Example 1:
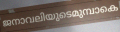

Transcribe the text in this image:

ജനാവലിയുടെമുമ്പാകെ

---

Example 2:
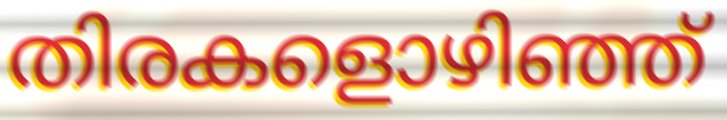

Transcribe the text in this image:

തിരകളൊഴിഞ്ഞ്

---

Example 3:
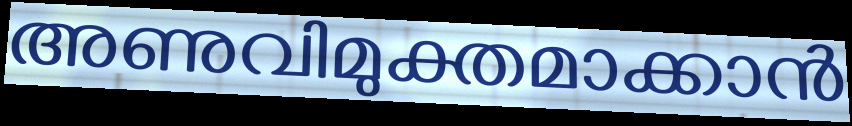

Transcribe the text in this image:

അണുവിമുക്തമാക്കാൻ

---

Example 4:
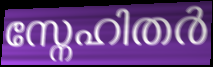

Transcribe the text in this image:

സ്നേഹിതർ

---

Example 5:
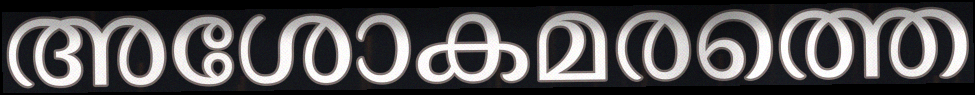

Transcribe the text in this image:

അശോകമരത്തെ